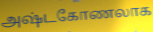
அஷ்டகோணலாக